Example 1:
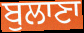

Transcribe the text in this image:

ਬੁਲਾਣਾ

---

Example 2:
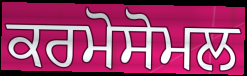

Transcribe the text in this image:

ਕਰਮੋਸੋਮਲ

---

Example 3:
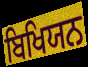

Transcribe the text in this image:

ਬਿਖਿਯਨ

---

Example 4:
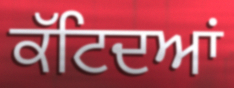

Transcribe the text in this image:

ਕੱਟਿਦਆਂ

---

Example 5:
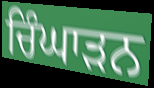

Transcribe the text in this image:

ਚਿੰਘਾੜਨ